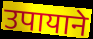
उपायाने